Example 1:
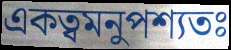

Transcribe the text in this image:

একত্বমনুপশ্যতঃ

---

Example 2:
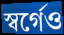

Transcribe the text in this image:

স্বর্গেও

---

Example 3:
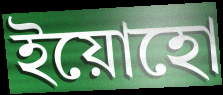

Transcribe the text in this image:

ইয়োহো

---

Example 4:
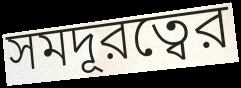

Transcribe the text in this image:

সমদূরত্বের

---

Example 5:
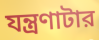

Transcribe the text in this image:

যন্ত্রণাটার